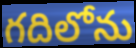
గదిలోను